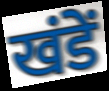
खंडें